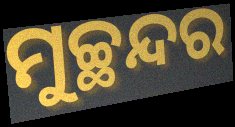
ମୁଚ୍ଛନ୍ଦର